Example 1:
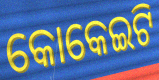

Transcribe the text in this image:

କୋକେଇଟି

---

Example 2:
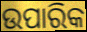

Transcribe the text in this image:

ଉପାରିକ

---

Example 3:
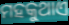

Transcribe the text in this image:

ମହକୁଥାଏ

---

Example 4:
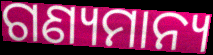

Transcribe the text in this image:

ଗଣ୍ୟମାନ୍ୟ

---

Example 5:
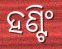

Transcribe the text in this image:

ହଣ୍ଟିଂ